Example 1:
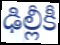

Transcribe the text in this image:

ఢిల్లీకీ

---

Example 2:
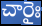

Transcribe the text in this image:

చారైః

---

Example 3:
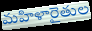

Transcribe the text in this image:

మహిళారైతుల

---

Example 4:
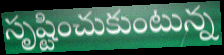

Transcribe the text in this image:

సృష్టించుకుంటున్న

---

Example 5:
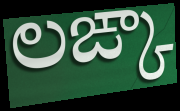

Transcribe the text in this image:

లఙ్కా